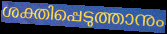
ശക്തിപ്പെടുത്താനും